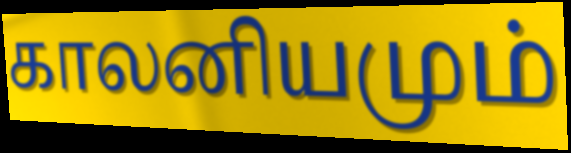
காலனியமும்